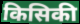
किसिकी